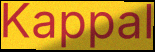
Kappal